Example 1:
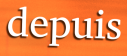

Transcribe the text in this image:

depuis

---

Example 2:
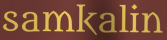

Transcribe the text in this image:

samkalin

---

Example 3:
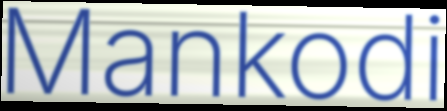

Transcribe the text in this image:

Mankodi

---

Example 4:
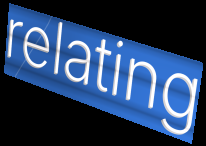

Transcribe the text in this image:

relating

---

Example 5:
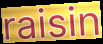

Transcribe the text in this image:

raisin